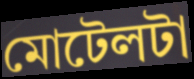
মোটেলটা